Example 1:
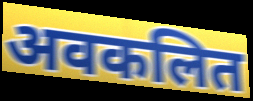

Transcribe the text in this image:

अवकलित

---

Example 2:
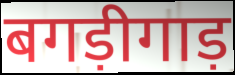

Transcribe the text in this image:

बगड़ीगाड़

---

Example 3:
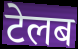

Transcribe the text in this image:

टेलब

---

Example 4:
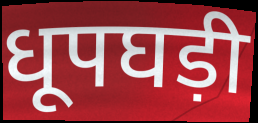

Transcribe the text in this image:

धूपघड़ी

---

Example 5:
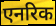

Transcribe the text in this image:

एनरिक